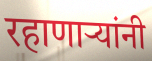
रहाणार्‍यांनी